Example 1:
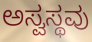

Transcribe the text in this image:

ಅಸ್ವಸ್ಥವು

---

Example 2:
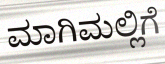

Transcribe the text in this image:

ಮಾಗಿಮಲ್ಲಿಗೆ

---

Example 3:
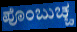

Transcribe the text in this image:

ಪೊಂಬುಚ್ಚ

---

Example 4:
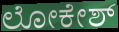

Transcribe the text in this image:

ಲೋಕೇಶ್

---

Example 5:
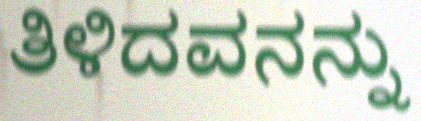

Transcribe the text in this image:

ತಿಳಿದವನನ್ನು